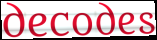
decodes